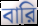
বারি